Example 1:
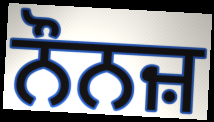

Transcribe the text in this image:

ਨੌਨਜ਼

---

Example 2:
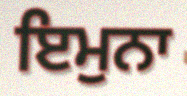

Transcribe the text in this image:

ਇਮੁਨਾ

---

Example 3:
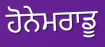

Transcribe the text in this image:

ਹੋਨੇਮਰਾਡੂ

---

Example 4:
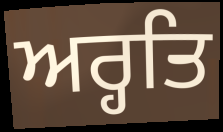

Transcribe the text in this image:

ਅਰ੍ਹਤਿ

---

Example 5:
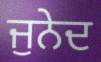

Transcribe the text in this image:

ਜੁਨੇਦ